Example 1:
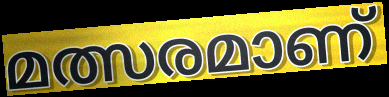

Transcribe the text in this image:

മത്സരമാണ്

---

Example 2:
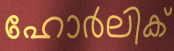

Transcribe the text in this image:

ഹോർലിക്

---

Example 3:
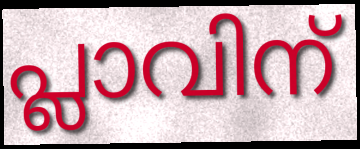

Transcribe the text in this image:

പ്ലാവിന്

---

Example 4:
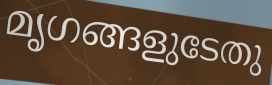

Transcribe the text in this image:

മൃഗങ്ങളുടേതു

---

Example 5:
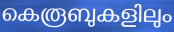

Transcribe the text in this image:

കെരൂബുകളിലും